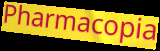
Pharmacopia